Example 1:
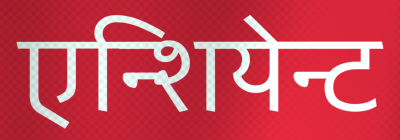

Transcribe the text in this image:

एन्शियेन्ट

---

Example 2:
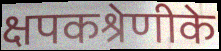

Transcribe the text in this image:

क्षपकश्रेणीके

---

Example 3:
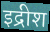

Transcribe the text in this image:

इद्रीश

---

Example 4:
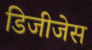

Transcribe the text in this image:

डिजीजेस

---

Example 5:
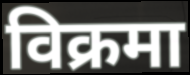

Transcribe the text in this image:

विक्रमा